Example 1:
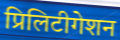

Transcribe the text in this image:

प्रिलिटीगेशन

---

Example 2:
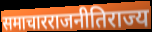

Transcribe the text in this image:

समाचारराजनीतिराज्य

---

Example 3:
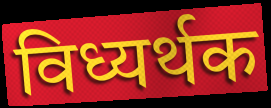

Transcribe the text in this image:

विध्यर्थक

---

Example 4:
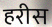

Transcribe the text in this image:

हरीस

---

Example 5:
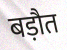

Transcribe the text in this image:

बड़ौत